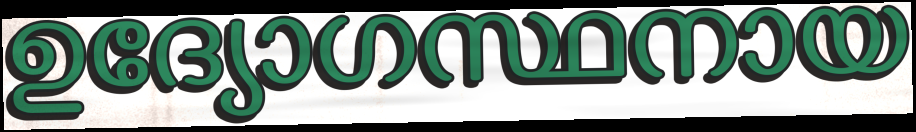
ഉദ്യോഗസ്ഥനായ